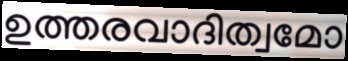
ഉത്തരവാദിത്വമോ